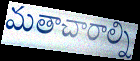
మతాచారాల్ని